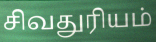
சிவதுரியம்